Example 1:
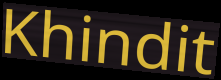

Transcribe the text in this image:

Khindit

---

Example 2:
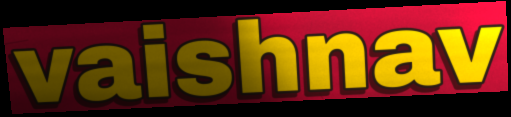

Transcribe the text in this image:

vaishnav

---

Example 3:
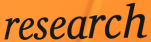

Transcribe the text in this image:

research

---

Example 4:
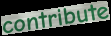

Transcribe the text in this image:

contribute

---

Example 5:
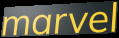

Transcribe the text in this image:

marvel